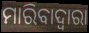
ମାରିବାଦ୍ୱାରା